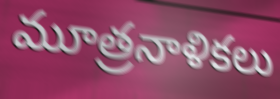
మూత్రనాళికలు